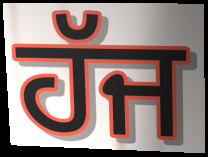
ਹੱਜ